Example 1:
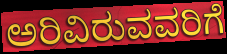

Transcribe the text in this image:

ಅರಿವಿರುವವರಿಗೆ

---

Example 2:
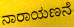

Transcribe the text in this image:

ನಾರಾಯಣನೆ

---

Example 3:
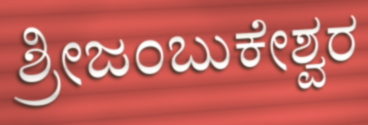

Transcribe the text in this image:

ಶ್ರೀಜಂಬುಕೇಶ್ವರ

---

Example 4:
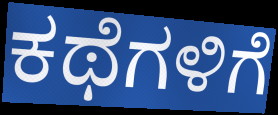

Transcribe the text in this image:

ಕಥೆಗಳಿಗೆ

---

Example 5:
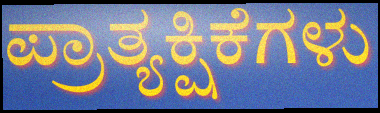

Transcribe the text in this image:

ಪ್ರಾತ್ಯಕ್ಷಿಕೆಗಳು